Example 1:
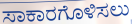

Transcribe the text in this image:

ಸಾಕಾರಗೊಳಿಸಲು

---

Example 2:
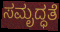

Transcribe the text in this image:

ಸಮೃದ್ಧತೆ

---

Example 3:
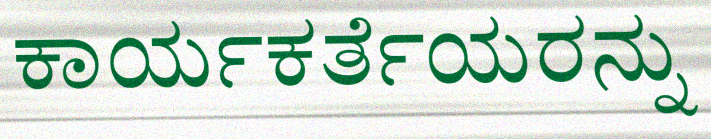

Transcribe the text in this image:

ಕಾರ್ಯಕರ್ತೆಯರನ್ನು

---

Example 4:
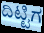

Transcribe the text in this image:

ದಿಟ್ಟಿಗ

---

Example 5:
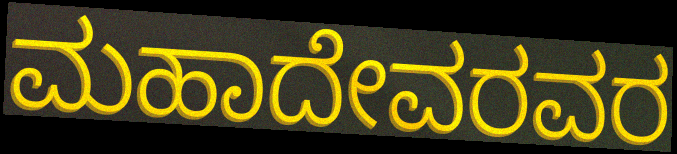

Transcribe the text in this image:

ಮಹಾದೇವರವರ